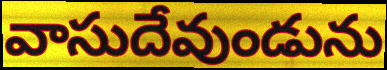
వాసుదేవుండును